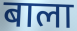
बाला